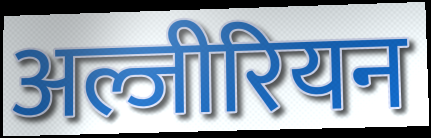
अल्जीरियन